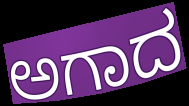
ಅಗಾದ